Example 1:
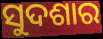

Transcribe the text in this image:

ସୁଦଶାର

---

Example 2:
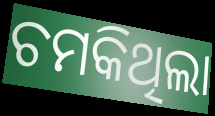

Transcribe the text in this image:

ଚମକିଥିଲା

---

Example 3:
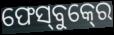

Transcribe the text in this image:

ଫେସ୍‍ବୁକ୍‍ରେ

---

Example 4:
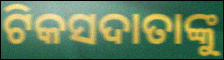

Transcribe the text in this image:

ଟିକସଦାତାଙ୍କୁ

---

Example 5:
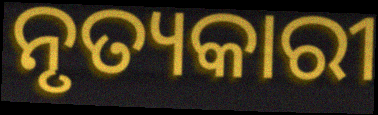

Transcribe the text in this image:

ନୃତ୍ୟକାରୀ